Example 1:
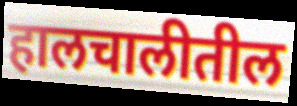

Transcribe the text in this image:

हालचालीतील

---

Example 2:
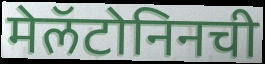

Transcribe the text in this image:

मेलॅटोनिनची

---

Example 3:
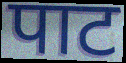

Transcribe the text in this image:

पाट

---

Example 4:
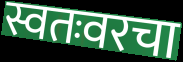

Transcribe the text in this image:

स्वतःवरचा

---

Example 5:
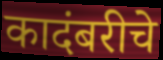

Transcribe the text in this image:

कादंबरीचे